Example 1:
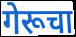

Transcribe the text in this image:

गेरूचा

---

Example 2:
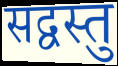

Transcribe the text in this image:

सद्वस्तु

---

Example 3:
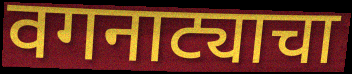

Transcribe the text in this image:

वगनाट्याचा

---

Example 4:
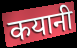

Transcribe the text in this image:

कयानी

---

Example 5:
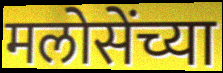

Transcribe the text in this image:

मलोसेंच्या